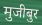
मुजीबुर